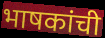
भाषकांची